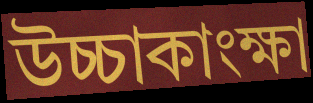
উচ্চাকাংক্ষা